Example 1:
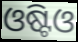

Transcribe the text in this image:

ଓଷ୍ଟିଓ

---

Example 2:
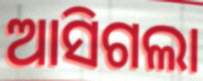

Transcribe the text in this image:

ଆସିଗଲା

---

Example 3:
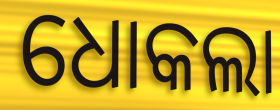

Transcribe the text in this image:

ଧୋକଲା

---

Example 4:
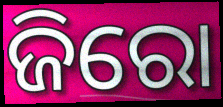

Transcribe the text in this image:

ଜିରୋ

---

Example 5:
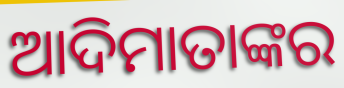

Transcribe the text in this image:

ଆଦିମାତାଙ୍କର